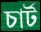
চার্ট